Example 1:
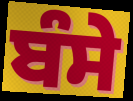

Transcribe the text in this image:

ਬੰਸੇ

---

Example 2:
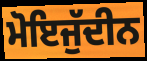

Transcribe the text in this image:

ਮੋਇਜੁੱਦੀਨ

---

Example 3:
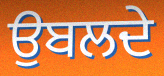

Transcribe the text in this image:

ਉਬਲਦੇ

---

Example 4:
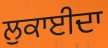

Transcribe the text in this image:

ਲੁਕਾਈਦਾ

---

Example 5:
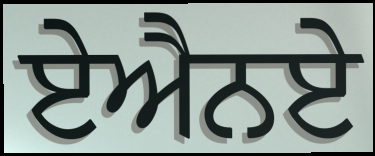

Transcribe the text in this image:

ਏਐਨਏ